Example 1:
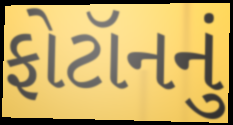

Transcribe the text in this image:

ફોટૉનનું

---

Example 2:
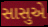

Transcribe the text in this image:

સાસુએ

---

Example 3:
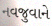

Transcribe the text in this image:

નવજુવાને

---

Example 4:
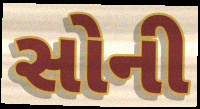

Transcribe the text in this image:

સોની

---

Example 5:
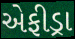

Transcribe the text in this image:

એફીડ્રા